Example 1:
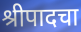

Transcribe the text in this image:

श्रीपादचा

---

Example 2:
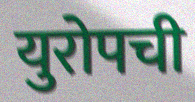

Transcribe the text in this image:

युरोपची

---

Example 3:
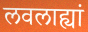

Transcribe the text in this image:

लवलाह्यां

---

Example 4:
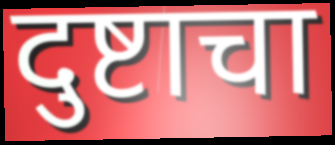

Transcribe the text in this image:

दुष्टाचा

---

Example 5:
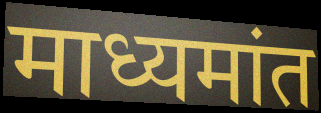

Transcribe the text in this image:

माध्यमांत